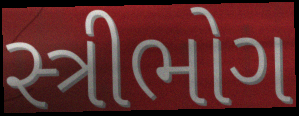
સ્ત્રીભોગ